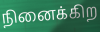
நினைக்கிற